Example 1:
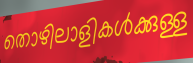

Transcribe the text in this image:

തൊഴിലാളികൾക്കുള്ള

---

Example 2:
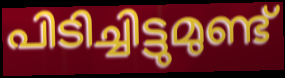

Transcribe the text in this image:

പിടിച്ചിട്ടുമുണ്ട്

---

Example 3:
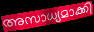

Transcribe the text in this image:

അസാധ്യമാക്കി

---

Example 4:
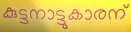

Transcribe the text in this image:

കുട്ടനാട്ടുകാരന്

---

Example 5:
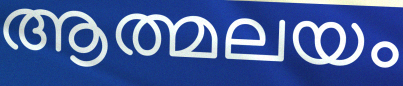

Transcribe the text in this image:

ആത്മലയം